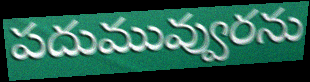
పదుమువ్వురను